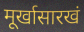
मूर्खासारखं